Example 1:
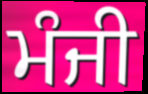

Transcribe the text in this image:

ਮੰਜੀ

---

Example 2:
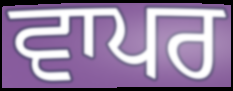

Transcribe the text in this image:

ਵਾਪਰ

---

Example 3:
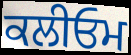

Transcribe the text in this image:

ਕਲੀਓਮ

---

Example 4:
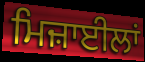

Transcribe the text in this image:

ਮਿਜ਼ਾਈਲਾਂ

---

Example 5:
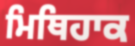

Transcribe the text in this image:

ਮਿਥਿਹਾਕ